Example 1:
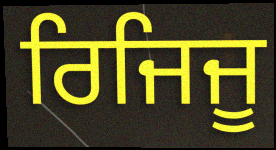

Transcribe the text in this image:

ਰਿਜਿਜੂ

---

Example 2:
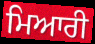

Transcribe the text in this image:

ਮਿਆਰੀ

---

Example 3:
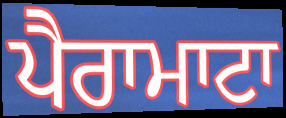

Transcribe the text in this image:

ਪੈਰਾਮਾਟਾ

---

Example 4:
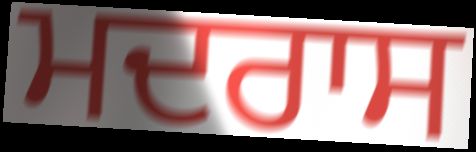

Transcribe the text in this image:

ਮਦਰਾਸ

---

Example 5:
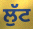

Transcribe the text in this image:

ਲੁੱਟ